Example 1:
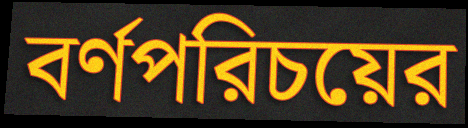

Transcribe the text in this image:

বর্ণপরিচয়ের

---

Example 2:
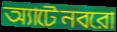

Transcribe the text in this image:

অ্যাটেনবরো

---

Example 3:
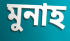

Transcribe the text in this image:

মুনাহ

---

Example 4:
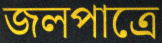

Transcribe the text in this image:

জলপাত্রে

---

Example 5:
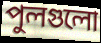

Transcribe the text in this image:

পুলগুলো